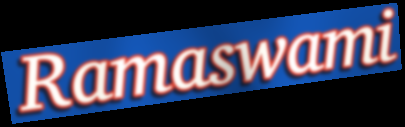
Ramaswami